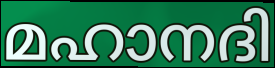
മഹാനദി